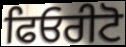
ਫਿਓਰੀਟੋ